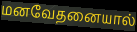
மனவேதனையால்